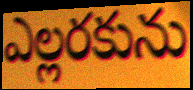
ఎల్లరకును